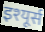
इश्यूर्स